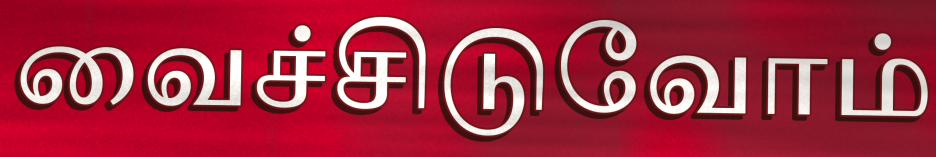
வைச்சிடுவோம்